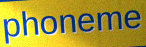
phoneme